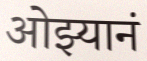
ओझ्यानं